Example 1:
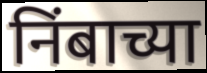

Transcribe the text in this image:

निंबाच्या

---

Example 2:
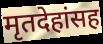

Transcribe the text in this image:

मृतदेहांसह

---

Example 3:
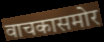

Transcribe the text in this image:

वाचकासमोर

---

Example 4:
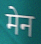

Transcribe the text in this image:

मेन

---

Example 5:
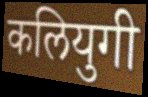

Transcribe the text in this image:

कलियुगी